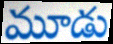
మూడు